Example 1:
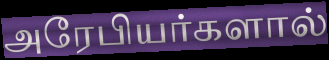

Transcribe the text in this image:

அரேபியர்களால்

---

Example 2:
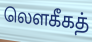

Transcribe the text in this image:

லௌகீகத்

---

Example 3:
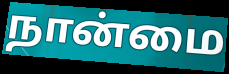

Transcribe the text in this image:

நான்மை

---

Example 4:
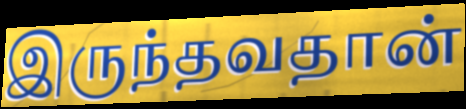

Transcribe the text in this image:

இருந்தவதான்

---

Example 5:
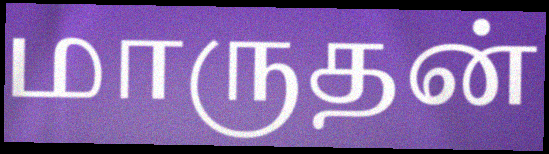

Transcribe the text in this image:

மாருதன்